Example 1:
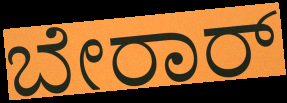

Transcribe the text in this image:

ಬೇರಾರ್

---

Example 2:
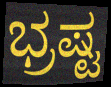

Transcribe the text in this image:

ಭ್ರಷ್ಟ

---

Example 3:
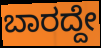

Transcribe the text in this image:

ಬಾರದ್ದೇ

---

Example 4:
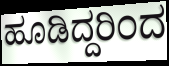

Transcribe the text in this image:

ಹೂಡಿದ್ದರಿಂದ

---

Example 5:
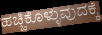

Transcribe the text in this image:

ಹಚ್ಚಿಕೊಳ್ಳುವುದಕ್ಕೆ